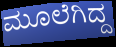
ಮೂಲೆಗಿದ್ದ